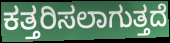
ಕತ್ತರಿಸಲಾಗುತ್ತದೆ